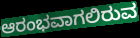
ಆರಂಭವಾಗಲಿರುವ